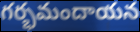
గర్భమందాయన